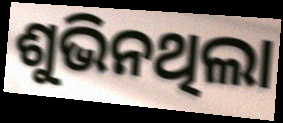
ଶୁଭିନଥିଲା